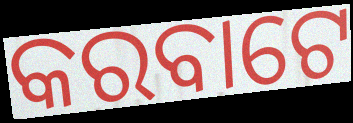
କରବାଟେ